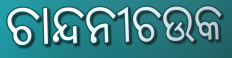
ଚାନ୍ଦନୀଚଉକ